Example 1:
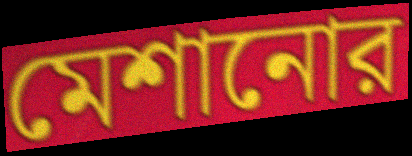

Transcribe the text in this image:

মেশানোর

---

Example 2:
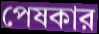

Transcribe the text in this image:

পেষকার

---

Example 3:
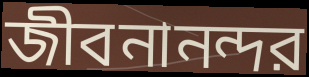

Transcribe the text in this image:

জীবনানন্দর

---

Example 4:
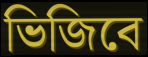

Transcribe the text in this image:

ভিজিবে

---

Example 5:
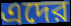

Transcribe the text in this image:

এদের